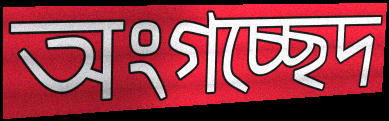
অংগচ্ছেদ